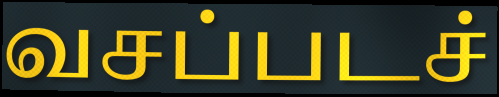
வசப்படச்